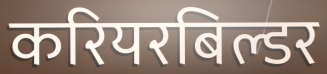
करियरबिल्डर